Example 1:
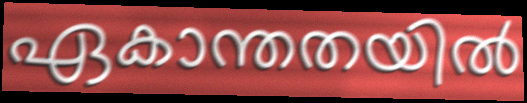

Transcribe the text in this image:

ഏകാന്തതയിൽ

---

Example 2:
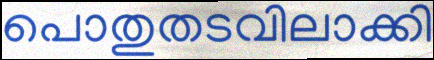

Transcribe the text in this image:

പൊതുതടവിലാക്കി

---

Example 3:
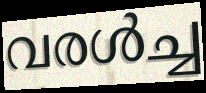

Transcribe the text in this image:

വരൾച്ച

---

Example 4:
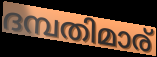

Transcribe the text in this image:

ദമ്പതിമാര്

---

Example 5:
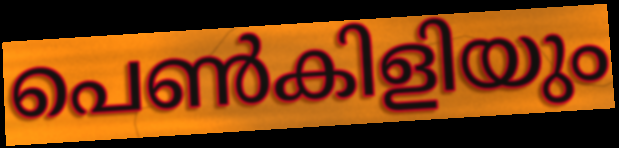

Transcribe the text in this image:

പെൺകിളിയും